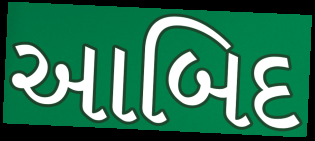
આબિદ